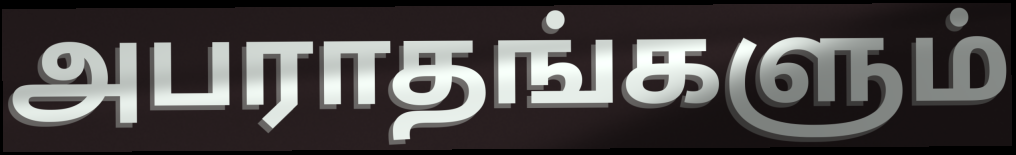
அபராதங்களும்